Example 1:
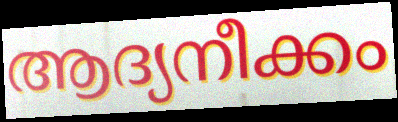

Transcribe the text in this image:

ആദ്യനീക്കം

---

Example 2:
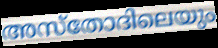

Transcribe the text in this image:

അസ്തോദിലെയും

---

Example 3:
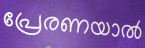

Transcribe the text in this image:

പ്രേരണയാൽ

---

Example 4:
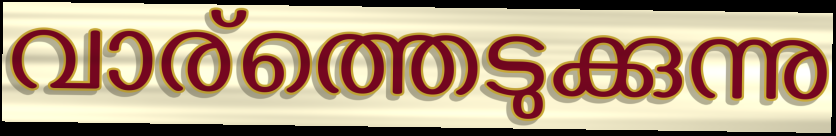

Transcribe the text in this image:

വാര്ത്തെടുക്കുന്നു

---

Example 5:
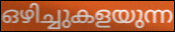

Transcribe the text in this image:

ഒഴിച്ചുകളയുന്ന